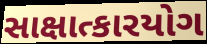
સાક્ષાત્કારયોગ